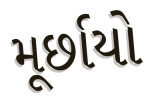
મૂર્છાયો